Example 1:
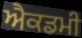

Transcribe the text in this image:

ਐਕਡਮੀ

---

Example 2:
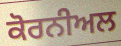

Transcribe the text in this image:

ਕੋਰਨੀਅਲ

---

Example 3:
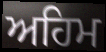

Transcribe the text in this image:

ਅਹਿਮ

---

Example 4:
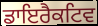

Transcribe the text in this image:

ਡਾਇਰੈਕਟਿਵ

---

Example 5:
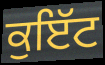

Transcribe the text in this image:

ਕੁਇੱਟ